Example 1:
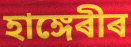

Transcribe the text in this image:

হাঙ্গেৰীৰ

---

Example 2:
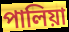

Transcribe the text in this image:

পালিয়া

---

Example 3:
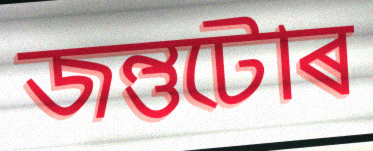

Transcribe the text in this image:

জন্তুটোৰ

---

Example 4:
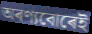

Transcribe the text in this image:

অৰণ্যবোৰেই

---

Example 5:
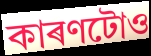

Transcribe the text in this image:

কাৰণটোও